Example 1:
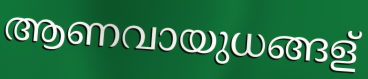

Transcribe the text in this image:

ആണവായുധങ്ങള്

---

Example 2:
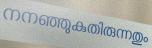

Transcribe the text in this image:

നനഞ്ഞുകുതിരുന്നതും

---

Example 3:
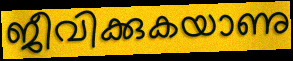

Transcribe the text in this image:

ജീവിക്കുകയാണു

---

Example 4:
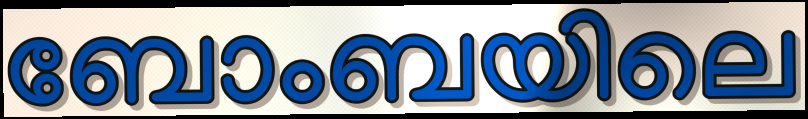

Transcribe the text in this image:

ബോംബയിലെ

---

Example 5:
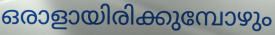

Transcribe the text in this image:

ഒരാളായിരിക്കുമ്പോഴും